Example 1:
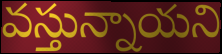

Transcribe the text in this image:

వస్తున్నాయని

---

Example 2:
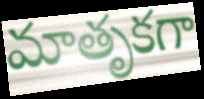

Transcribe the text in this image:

మాతృకగా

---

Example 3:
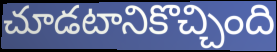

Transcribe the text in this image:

చూడటానికొచ్చింది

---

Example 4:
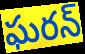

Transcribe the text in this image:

ఘరన్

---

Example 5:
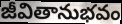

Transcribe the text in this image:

జీవితానుభవం